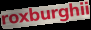
roxburghii